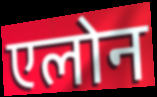
एलोन